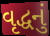
વૃદ્ધનું